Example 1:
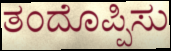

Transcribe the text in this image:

ತಂದೊಪ್ಪಿಸು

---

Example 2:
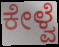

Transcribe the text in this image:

ಕೇಳ್ವೆ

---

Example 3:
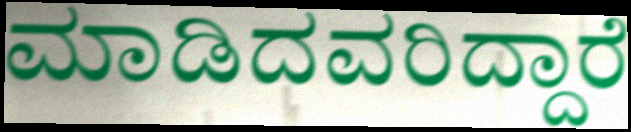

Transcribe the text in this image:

ಮಾಡಿದವರಿದ್ದಾರೆ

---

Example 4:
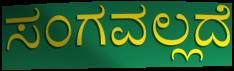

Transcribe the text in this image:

ಸಂಗವಲ್ಲದೆ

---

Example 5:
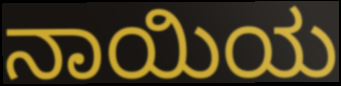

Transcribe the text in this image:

ನಾಯಿಯ